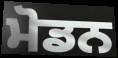
ਮੋਡਨ